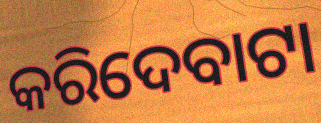
କରିଦେବାଟା